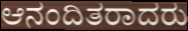
ಆನಂದಿತರಾದರು